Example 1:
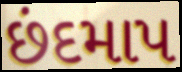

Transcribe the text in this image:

છંદમાપ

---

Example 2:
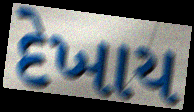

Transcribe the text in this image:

દેખાય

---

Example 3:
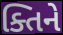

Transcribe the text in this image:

ક્તિને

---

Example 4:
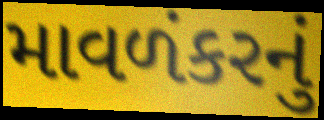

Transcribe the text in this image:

માવળંકરનું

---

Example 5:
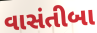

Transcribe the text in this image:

વાસંતીબા